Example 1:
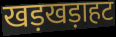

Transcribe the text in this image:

खड़खड़ाहट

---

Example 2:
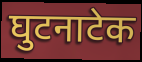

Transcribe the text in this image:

घुटनाटेक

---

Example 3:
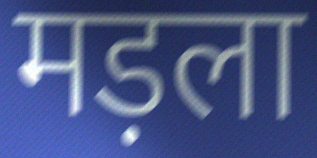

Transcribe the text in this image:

मड़ला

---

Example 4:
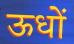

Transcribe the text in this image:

ऊधों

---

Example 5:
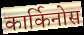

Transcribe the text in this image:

कार्किनोस